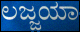
ಲಜ್ಜಯಾ